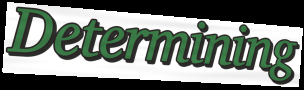
Determining